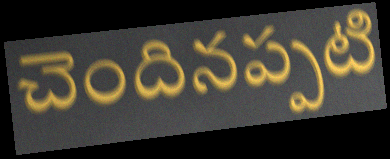
చెందినప్పటి